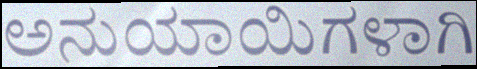
ಅನುಯಾಯಿಗಳಾಗಿ